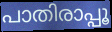
പാതിരാപ്പൂ